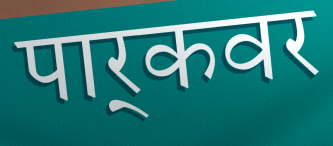
पार्कवर